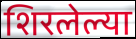
शिरलेल्या